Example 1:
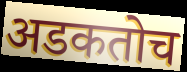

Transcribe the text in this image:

अडकतोच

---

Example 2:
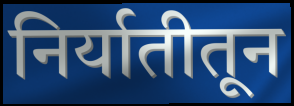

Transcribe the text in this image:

निर्यातीतून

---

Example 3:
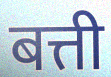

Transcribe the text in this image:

बत्ती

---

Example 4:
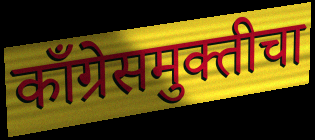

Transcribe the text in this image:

काँग्रेसमुक्तीचा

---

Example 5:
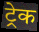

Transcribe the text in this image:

ट्रेक